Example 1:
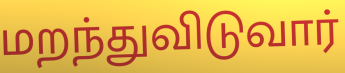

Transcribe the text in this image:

மறந்துவிடுவார்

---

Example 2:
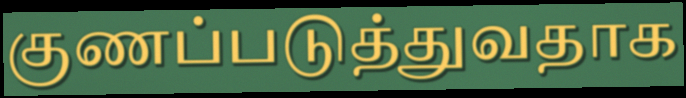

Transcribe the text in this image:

குணப்படுத்துவதாக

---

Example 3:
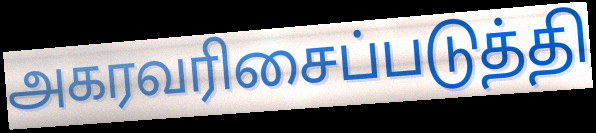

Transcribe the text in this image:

அகரவரிசைப்படுத்தி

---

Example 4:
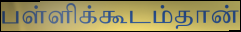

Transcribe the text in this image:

பள்ளிக்கூடம்தான்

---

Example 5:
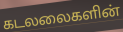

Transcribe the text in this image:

கடலலைகளின்